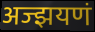
अज्झयणं